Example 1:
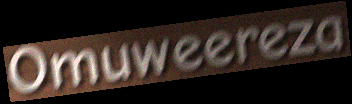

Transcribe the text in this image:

Omuweereza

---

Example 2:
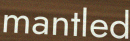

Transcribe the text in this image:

mantled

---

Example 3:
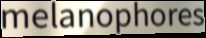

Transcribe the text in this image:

melanophores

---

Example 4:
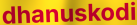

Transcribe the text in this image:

dhanuskodi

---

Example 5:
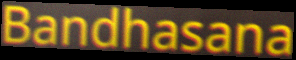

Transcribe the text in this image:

Bandhasana